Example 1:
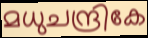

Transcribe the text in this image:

മധുചന്ദ്രികേ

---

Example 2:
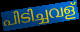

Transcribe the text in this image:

പിടിച്ചവള്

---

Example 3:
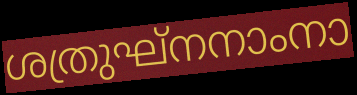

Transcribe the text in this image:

ശത്രുഘ്നനാംനാ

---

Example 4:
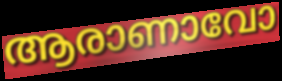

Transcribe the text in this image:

ആരാണാവോ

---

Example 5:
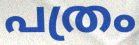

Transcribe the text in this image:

പത്രം